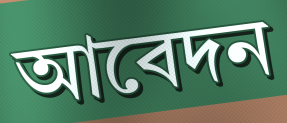
আবেদন